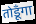
तोडूँगा